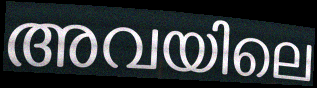
അവയിലെ